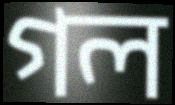
গল